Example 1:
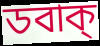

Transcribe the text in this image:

ডবাক্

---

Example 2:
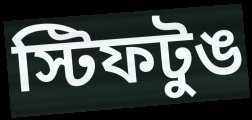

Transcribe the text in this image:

স্টিফটুঙ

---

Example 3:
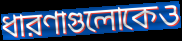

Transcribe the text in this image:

ধারণাগুলোকেও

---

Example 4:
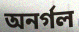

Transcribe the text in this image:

অনর্গল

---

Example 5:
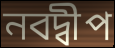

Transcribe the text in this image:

নবদ্বীপ